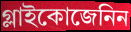
গ্লাইকোজেনিন